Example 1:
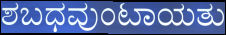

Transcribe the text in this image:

ಶಬಧವುಂಟಾಯತು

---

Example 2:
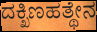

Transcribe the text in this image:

ದಕ್ಖಿಣಹತ್ಥೇನ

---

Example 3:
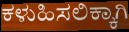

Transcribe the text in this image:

ಕಳುಹಿಸಲಿಕ್ಕಾಗಿ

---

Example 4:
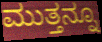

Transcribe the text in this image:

ಮುತ್ತನ್ನೂ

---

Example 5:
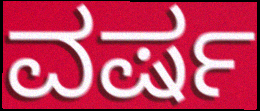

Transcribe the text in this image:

ವರ್ಷ